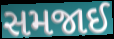
સમજાઈ